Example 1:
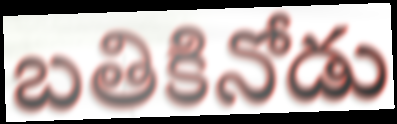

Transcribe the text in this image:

బతికినోడు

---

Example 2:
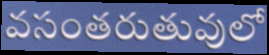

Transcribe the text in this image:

వసంతరుతువులో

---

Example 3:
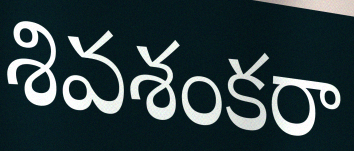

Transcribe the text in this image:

శివశంకరా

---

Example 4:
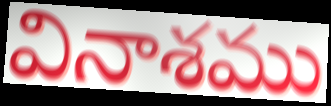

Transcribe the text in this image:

వినాశము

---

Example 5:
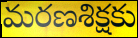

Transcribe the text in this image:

మరణశిక్షకు